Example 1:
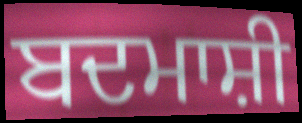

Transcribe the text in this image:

ਬਦਮਾਸ਼ੀ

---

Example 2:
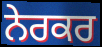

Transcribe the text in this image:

ਨੇਰਕਰ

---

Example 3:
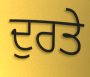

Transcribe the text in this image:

ਦੁਰਤੇ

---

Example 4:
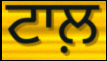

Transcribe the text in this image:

ਟਾਲ਼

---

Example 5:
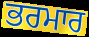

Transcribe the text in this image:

ਭਰਮਾਰ